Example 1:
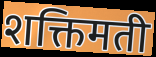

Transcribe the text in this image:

शक्तिमती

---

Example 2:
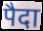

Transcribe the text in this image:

पैदा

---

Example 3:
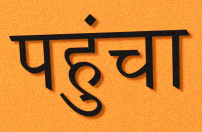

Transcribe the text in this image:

पहुंचा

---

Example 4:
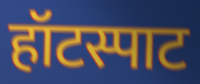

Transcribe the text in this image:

हॉटस्पाट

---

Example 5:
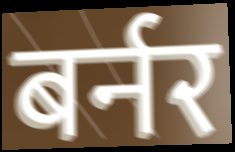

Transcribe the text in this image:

बर्नर